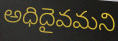
అధిదైవమని